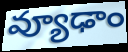
వ్యూఢాం